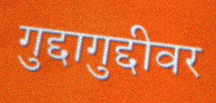
गुद्दागुद्दीवर